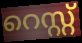
റെസ്റ്റ്